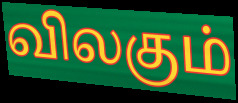
விலகும்